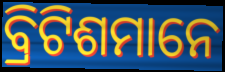
ବ୍ରିଟିଶମାନେ